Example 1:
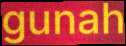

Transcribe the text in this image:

gunah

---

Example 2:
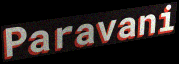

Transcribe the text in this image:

Paravani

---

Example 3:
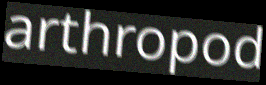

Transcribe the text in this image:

arthropod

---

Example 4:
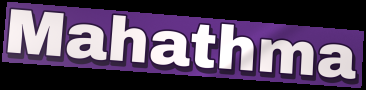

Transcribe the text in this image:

Mahathma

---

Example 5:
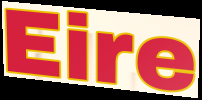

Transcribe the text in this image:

Eire